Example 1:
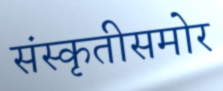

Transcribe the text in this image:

संस्कृतीसमोर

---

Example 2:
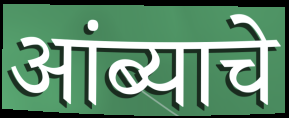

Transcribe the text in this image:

आंब्याचे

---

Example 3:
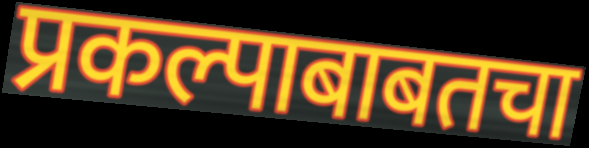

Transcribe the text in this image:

प्रकल्पाबाबतचा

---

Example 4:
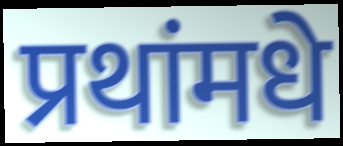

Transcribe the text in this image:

प्रथांमधे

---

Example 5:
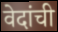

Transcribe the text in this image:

वेदांची